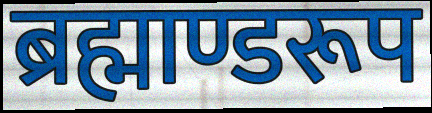
ब्रह्माण्डरूप